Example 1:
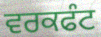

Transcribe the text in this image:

ਵਰਕਫੰਟ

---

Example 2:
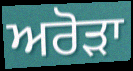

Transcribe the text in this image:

ਅਰੋੜਾ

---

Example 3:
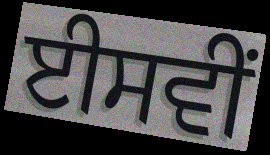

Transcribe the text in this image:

ਈਸਵੀਂ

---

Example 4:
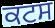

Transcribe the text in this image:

ਕਟਸ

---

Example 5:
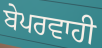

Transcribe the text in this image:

ਬੇਪਰਵਾਹੀ